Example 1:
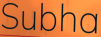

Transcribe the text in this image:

Subha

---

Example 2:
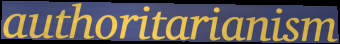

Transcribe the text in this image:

authoritarianism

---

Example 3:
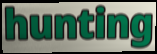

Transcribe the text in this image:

hunting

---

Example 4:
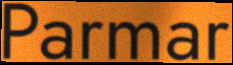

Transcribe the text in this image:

Parmar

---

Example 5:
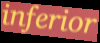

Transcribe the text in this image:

inferior